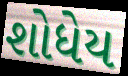
શોધેય